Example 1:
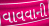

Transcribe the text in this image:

વાવવાની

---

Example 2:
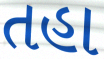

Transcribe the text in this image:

તહા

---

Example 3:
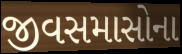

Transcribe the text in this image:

જીવસમાસોના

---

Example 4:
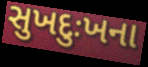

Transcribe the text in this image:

સુખદુઃખના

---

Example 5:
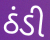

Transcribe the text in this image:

ઠંડી